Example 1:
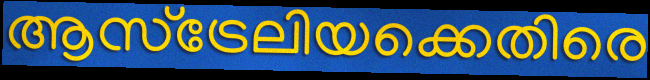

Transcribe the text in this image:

ആസ്ട്രേലിയക്കെതിരെ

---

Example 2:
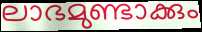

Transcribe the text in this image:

ലാഭമുണ്ടാക്കും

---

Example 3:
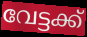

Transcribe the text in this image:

വേട്ടക്ക്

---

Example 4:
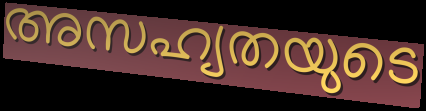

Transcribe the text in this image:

അസഹ്യതയുടെ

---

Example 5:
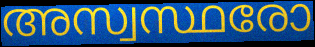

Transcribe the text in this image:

അസ്വസ്ഥരോ